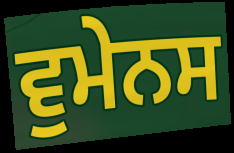
ਵੁਮੇਨਸ